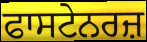
ਫਾਸਟੇਨਰਜ਼